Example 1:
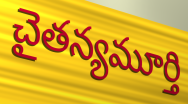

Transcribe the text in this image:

చైతన్యమూర్తి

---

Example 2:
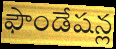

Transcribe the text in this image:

ఫౌండేషన్ల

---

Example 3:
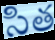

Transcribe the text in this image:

సిత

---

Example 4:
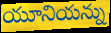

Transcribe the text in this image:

యూనియన్ను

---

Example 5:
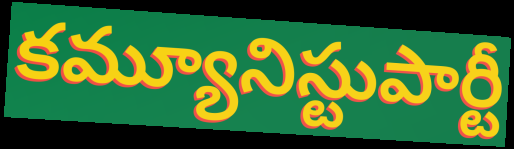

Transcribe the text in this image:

కమ్యూనిస్టుపార్టీ